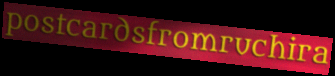
postcardsfromruchira